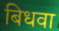
बिधवा